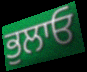
ਭੁਲਾਓ